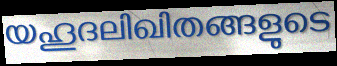
യഹൂദലിഖിതങ്ങളുടെ